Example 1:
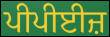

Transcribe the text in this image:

ਪੀਪੀਈਜ਼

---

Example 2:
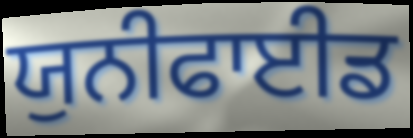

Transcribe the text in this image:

ਯੁਨੀਫਾਈਡ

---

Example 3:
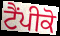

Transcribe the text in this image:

ਟੈਂਪੀਕੋ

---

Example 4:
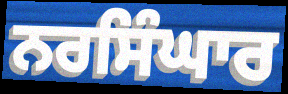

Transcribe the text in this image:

ਨਰਸਿੰਘਾਰ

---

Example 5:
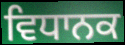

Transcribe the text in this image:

ਵਿਧਾਨਕ